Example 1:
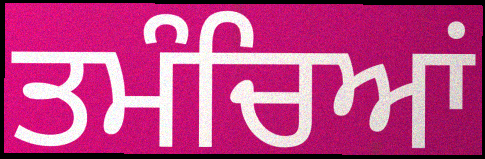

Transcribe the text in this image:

ਤਮੰਚਿਆਂ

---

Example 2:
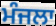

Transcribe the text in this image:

ਮੰਜਲਾ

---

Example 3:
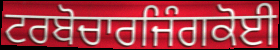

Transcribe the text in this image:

ਟਰਬੋਚਾਰਜਿੰਗਕੋਈ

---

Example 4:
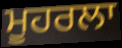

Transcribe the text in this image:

ਮੂਹਰਲਾ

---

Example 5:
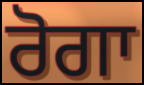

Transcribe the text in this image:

ਰੋਗਾ